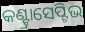
କଣ୍ଟ୍ରାସେପ୍ଟିଭ